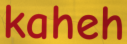
kaheh